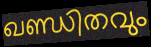
ഖണ്ഡിതവും